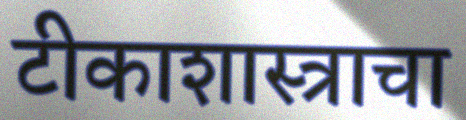
टीकाशास्त्राचा